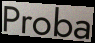
Proba